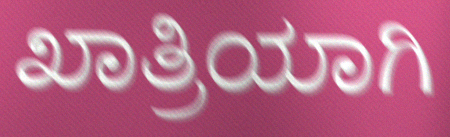
ಖಾತ್ರಿಯಾಗಿ